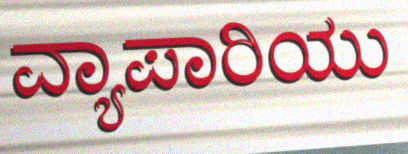
ವ್ಯಾಪಾರಿಯು